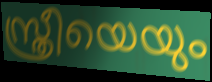
സ്ത്രീയെയും